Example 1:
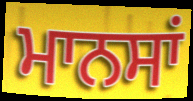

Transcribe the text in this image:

ਮਾਨਸਾਂ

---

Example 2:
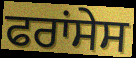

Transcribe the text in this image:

ਫਰਾਂਸੇਸ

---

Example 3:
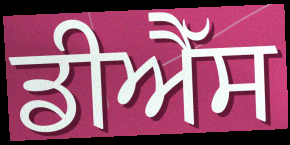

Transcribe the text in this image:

ਡੀਐੱਸ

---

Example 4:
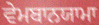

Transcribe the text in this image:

ਵੇਮਬਾਨਯਾਮਾ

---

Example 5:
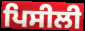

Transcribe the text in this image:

ਪਿਸੀਲੀ